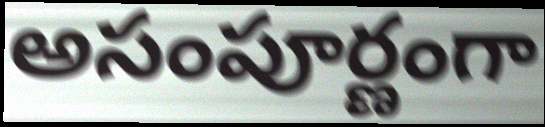
అసంపూర్ణంగా